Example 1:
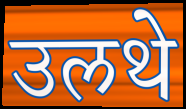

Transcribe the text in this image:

उलथे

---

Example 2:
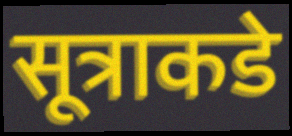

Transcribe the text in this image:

सूत्राकडे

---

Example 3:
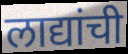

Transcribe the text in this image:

लाद्यांची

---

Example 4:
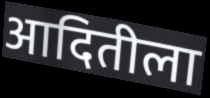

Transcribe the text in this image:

आदितीला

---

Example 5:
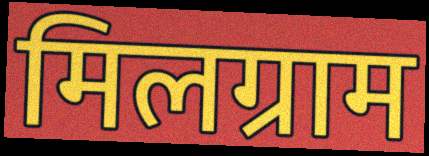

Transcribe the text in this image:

मिलग्राम